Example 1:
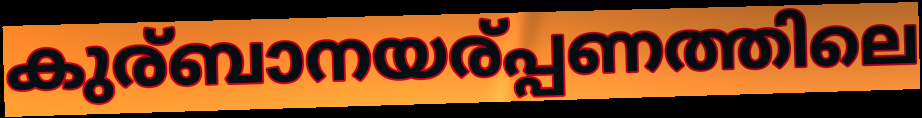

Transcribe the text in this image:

കുര്ബാനയര്പ്പണത്തിലെ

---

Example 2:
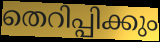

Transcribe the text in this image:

തെറിപ്പിക്കും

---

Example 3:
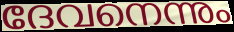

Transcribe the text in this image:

ദേവനെന്നും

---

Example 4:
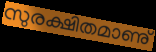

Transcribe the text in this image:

സുരക്ഷിതമാണു്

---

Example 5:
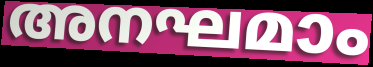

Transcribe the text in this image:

അനഘമാം